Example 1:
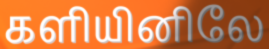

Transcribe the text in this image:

களியினிலே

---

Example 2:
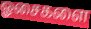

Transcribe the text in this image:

ஓசைகளை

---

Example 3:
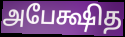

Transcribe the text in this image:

அபேக்ஷித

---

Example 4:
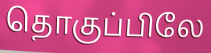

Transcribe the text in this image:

தொகுப்பிலே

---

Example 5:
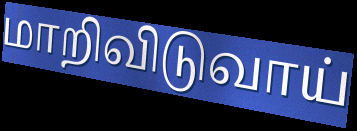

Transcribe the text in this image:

மாறிவிடுவாய்